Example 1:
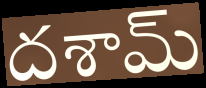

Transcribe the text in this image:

దశామ్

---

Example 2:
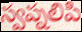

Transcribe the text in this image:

స్వప్నలిపి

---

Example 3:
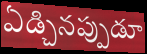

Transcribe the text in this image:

ఏడ్చినప్పుడూ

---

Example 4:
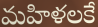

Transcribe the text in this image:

మహిళలకే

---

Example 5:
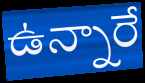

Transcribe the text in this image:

ఉన్నారే